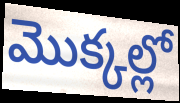
మొక్కల్లో